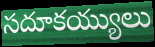
సదూకయ్యులు